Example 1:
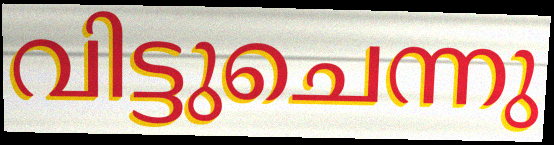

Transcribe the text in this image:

വിട്ടുചെന്നു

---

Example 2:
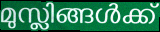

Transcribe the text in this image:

മുസ്ലിങ്ങൾക്ക്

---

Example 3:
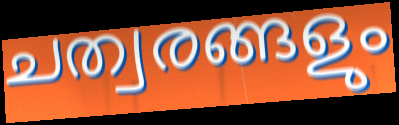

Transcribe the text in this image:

ചത്വരങ്ങളും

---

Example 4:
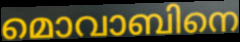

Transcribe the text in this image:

മൊവാബിനെ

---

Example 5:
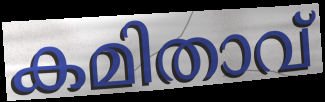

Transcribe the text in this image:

കമിതാവ്